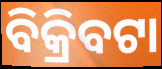
ବିକ୍ରିବଟା